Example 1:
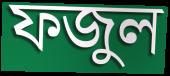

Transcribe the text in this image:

ফজুল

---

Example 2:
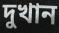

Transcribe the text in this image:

দুখান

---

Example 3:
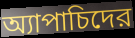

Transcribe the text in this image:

অ্যাপাচিদের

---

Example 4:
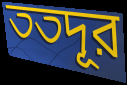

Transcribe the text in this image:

ততদূর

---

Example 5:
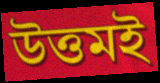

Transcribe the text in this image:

উত্তমই